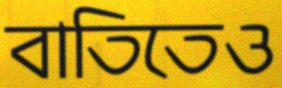
বাতিতেও